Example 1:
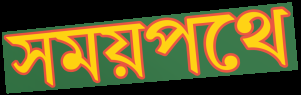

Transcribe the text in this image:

সময়পথে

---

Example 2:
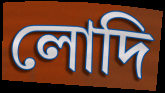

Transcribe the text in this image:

লোদি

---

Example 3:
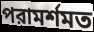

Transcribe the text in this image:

পরামর্শমত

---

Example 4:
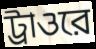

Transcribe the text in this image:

ট্রাওরে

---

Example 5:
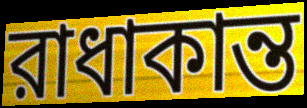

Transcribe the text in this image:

রাধাকান্ত